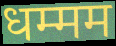
धम्मम